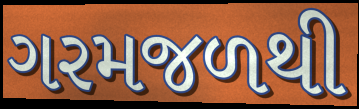
ગરમજળથી